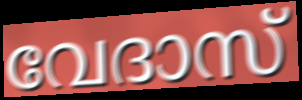
വേദാസ്